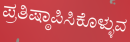
ಪ್ರತಿಷ್ಠಾಪಿಸಿಕೊಳ್ಳುವ